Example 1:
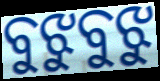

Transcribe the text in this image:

ବୁଝୁବୁଝୁ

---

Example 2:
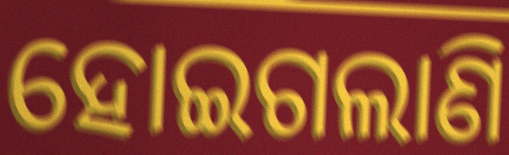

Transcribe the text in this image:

ହୋଇଗଲାଣି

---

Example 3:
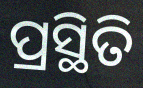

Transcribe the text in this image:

ପ୍ରସ୍ଥିତି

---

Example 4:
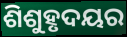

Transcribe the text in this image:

ଶିଶୁହୃଦୟର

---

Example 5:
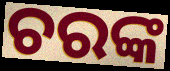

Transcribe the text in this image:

ଚରଙ୍କ